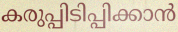
കരുപ്പിടിപ്പിക്കാൻ